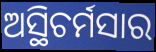
ଅସ୍ଥିଚର୍ମସାର